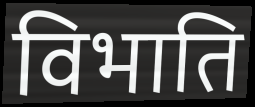
विभाति